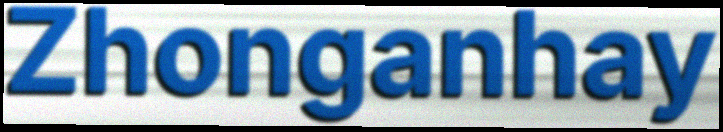
Zhonganhay